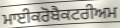
ਮਾਈਕਰੋਬੈਕਟਰੀਅਮ